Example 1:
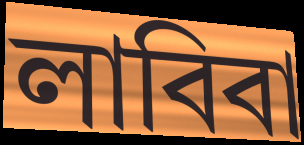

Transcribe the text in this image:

লাবিবা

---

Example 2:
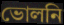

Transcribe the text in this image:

ভোলনি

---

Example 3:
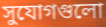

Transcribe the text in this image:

সুযোগগুলো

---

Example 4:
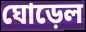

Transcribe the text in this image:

ঘোড়েল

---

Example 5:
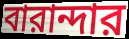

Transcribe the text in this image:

বারান্দার